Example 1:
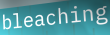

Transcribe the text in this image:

bleaching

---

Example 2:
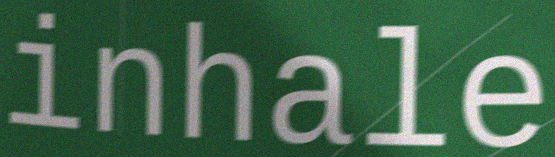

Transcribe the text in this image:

inhale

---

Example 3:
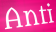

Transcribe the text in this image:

Anti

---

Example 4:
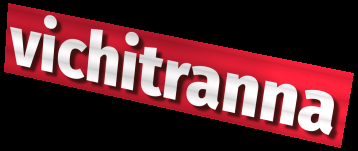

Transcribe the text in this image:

vichitranna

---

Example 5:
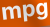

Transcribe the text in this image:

mpg